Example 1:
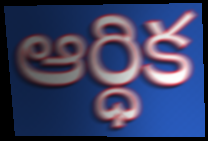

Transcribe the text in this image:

ఆర్ధిక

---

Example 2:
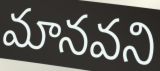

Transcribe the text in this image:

మానవని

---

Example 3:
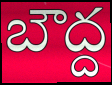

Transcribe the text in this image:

బౌద్ద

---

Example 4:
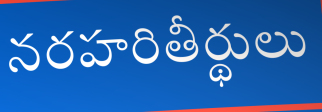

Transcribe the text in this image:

నరహరితీర్థులు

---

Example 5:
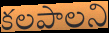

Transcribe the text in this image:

కలపాలని